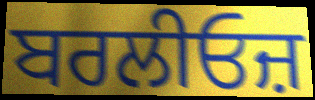
ਬਰਲੀਓਜ਼